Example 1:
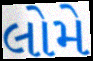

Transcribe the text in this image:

લોમે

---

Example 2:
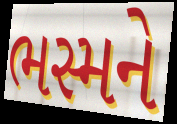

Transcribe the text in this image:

ભસ્મને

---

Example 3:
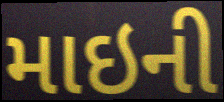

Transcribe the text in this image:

માઇની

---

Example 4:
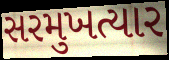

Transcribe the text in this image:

સરમુખત્યાર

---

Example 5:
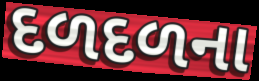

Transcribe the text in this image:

દળદળના